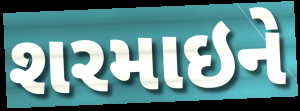
શરમાઇને